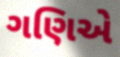
ગણિએ